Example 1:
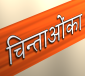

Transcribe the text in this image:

चिन्ताओंका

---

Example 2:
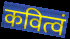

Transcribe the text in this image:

कवित्वं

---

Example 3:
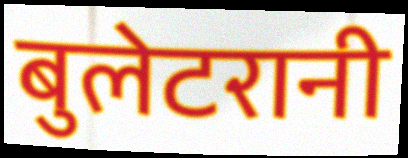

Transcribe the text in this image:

बुलेटरानी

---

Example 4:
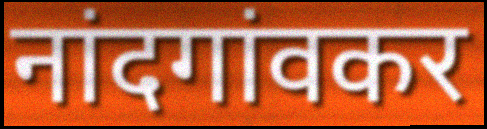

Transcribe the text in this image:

नांदगांवकर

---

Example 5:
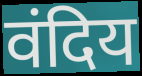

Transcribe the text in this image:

वंदिय